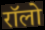
रॉलो